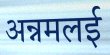
अन्नमलई